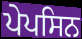
ਪੇਪਸਿਨ